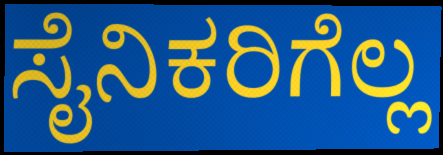
ಸೈನಿಕರಿಗೆಲ್ಲ